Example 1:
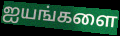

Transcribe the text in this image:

ஐயங்களை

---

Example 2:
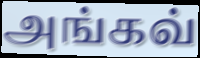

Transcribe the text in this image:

அங்கவ்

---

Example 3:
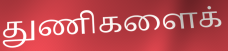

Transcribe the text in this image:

துணிகளைக்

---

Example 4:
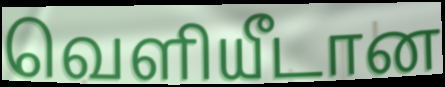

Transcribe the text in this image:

வெளியீடான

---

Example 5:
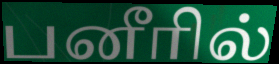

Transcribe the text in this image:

பனீரில்